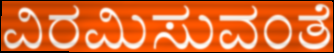
ವಿರಮಿಸುವಂತೆ